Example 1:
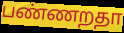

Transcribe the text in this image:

பண்ணறதா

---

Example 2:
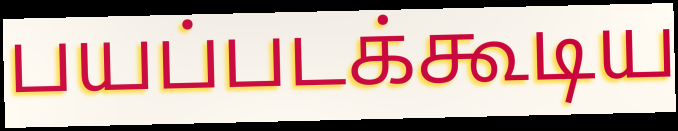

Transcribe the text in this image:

பயப்படக்கூடிய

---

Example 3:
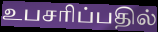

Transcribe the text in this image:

உபசரிப்பதில்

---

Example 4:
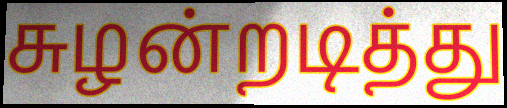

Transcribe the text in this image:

சுழன்றடித்து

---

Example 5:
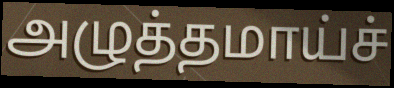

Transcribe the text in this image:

அழுத்தமாய்ச்